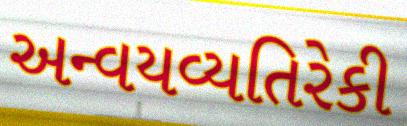
અન્વયવ્યતિરેકી